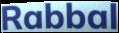
Rabbal